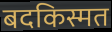
बदकिस्‍मत